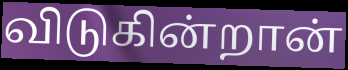
விடுகின்றான்